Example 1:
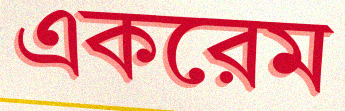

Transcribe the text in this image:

একরেম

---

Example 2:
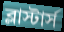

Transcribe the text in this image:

ব্লাস্টার্স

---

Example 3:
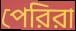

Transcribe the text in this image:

পেরিরা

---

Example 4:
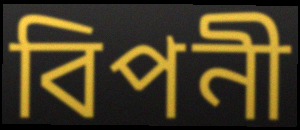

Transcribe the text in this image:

বিপনী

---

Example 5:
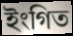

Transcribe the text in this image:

ইংগিত